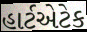
હાર્ટએટેક